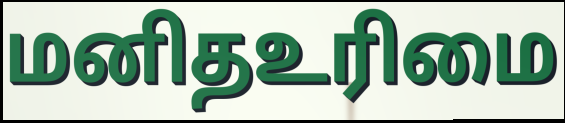
மனிதஉரிமை